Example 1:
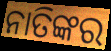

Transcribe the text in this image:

ନାତିଙ୍କର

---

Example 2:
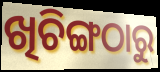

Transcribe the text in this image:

ଖିଚିଙ୍ଗଠାରୁ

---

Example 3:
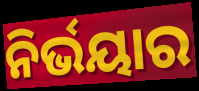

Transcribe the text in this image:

ନିର୍ଭୟାର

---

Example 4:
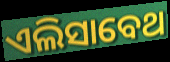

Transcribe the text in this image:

ଏଲିସାବେଥ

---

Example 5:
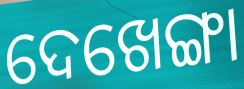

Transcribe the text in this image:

ଦେଖେଙ୍ଗା